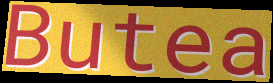
Butea